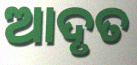
ଆଦୃତ